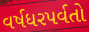
વર્ષધરપર્વતો